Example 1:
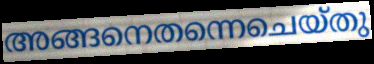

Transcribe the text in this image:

അങ്ങനെതന്നെചെയ്തു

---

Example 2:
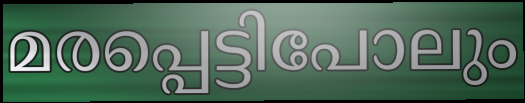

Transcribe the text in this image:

മരപ്പെട്ടിപോലും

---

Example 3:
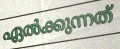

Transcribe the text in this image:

ഏൽക്കുന്നത്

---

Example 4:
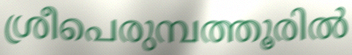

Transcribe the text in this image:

ശ്രീപെരുമ്പത്തൂരിൽ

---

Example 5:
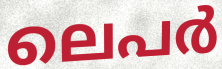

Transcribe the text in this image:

ലെപർ